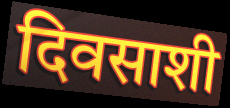
दिवसाशी